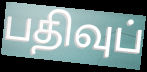
பதிவுப்